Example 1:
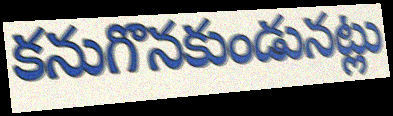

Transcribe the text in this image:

కనుగొనకుండునట్లు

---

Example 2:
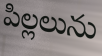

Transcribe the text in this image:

పిల్లలును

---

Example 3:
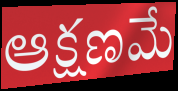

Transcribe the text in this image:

ఆక్షణమే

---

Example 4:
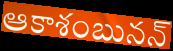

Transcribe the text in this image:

ఆకాశంబునన్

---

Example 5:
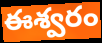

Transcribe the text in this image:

ఈశ్వరం